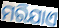
ମରିଯାଏ